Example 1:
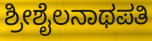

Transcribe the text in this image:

ಶ್ರೀಶೈಲನಾಥಪತಿ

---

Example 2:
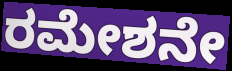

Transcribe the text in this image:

ರಮೇಶನೇ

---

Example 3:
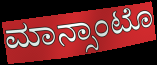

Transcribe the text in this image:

ಮಾನ್ಸಾಂಟೊ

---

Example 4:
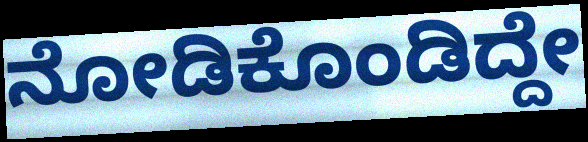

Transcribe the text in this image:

ನೋಡಿಕೊಂಡಿದ್ದೇ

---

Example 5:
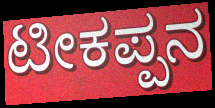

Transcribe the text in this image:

ಟೀಕಪ್ಪನ